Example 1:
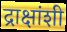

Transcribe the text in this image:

द्राक्षांशी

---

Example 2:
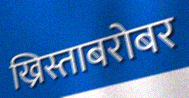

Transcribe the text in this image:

ख्रिस्ताबरोबर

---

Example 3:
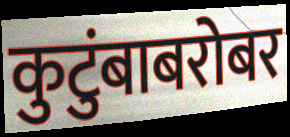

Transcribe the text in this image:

कुटुंबाबरोबर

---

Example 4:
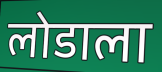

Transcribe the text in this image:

लोडाला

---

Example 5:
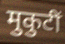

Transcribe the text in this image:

मुकुटीं